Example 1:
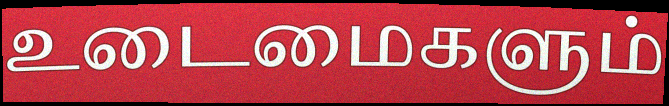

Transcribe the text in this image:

உடைமைகளும்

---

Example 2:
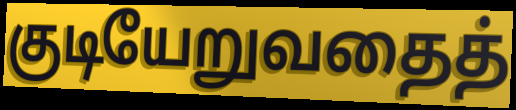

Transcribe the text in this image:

குடியேறுவதைத்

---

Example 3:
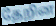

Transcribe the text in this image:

தேறின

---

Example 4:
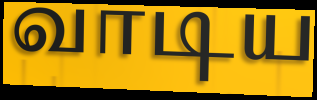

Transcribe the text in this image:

வாடிய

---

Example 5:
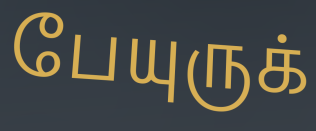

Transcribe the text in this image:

பேயுருக்